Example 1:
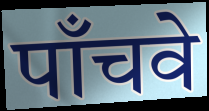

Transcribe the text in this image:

पाँचवे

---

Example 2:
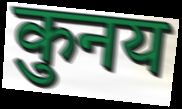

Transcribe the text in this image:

कुनय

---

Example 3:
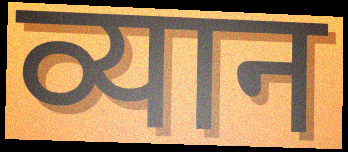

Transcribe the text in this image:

व्यान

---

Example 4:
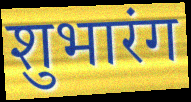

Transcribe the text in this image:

शुभारंग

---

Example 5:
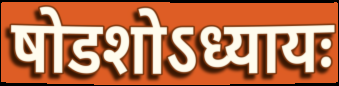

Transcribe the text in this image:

षोडशोऽध्यायः